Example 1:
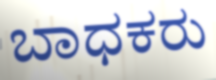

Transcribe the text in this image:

ಬಾಧಕರು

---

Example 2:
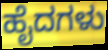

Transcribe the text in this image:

ಹೈದಗಳು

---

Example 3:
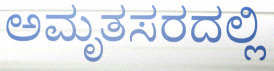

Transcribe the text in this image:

ಅಮೃತಸರದಲ್ಲಿ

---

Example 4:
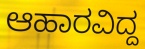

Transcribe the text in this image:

ಆಹಾರವಿದ್ದ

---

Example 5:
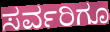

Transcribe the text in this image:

ಸರ್ವರಿಗೂ